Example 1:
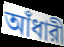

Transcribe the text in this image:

আঁধারী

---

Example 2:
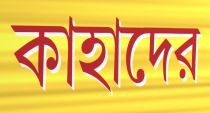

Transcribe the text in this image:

কাহাদের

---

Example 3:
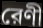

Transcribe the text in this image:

রেণী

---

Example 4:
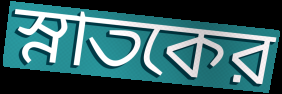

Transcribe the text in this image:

স্নাতকের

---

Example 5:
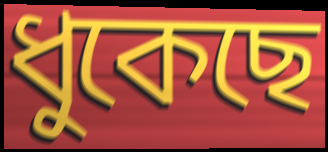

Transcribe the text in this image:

ধুকেছে